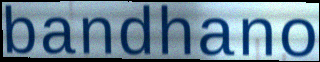
bandhano